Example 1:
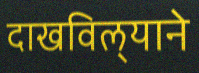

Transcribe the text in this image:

दाखविल्याने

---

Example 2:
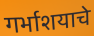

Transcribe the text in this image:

गर्भाशयाचे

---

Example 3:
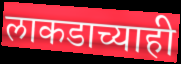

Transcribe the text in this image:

लाकडाच्याही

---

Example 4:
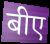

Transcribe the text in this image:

बीए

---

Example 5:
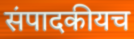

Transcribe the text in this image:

संपादकीयच